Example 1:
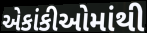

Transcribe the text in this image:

એકાંકીઓમાંથી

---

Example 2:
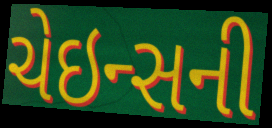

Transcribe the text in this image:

ચેઇન્સની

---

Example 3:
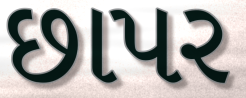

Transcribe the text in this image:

છાપર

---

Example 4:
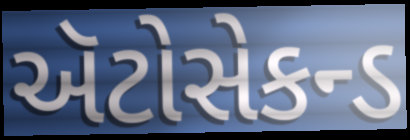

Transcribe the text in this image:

ઍટોસેકન્ડ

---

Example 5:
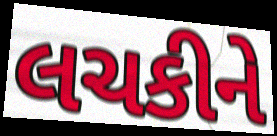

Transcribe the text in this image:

લચકીને